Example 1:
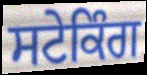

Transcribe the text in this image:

ਸਟੇਕਿੰਗ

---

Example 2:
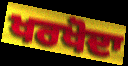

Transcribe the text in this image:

ਖਰਖੋਦਾ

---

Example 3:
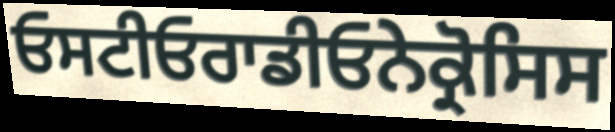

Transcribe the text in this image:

ਓਸਟੀਓਰਾਡੀਓਨੇਕ੍ਰੋਸਿਸ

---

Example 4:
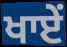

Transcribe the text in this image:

ਖਾਏਂ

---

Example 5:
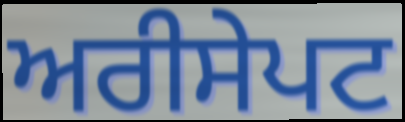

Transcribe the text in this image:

ਅਰੀਸੇਪਟ